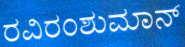
ರವಿರಂಶುಮಾನ್